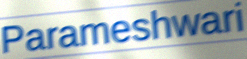
Parameshwari